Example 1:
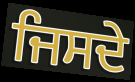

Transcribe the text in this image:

ਜਿਸਦੇ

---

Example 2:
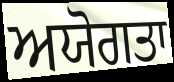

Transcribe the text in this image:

ਅਯੋਗਤਾ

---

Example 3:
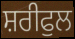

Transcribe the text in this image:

ਸ਼ਰੀਫੁਲ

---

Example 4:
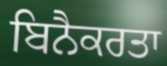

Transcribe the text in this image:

ਬਿਨੈਕਰਤਾ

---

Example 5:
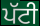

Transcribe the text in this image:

ਪੱਟੀ